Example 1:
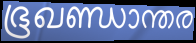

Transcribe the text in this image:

ഭൂഖണ്ഡാന്തര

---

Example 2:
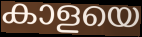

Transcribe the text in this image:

കാളയെ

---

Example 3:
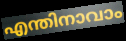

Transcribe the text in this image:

എന്തിനാവാം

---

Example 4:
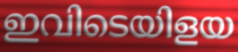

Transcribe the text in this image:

ഇവിടെയിളയ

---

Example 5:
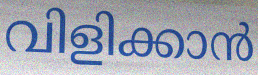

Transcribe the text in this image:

വിളിക്കാൻ